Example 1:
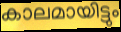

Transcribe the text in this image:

കാലമായിട്ടും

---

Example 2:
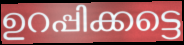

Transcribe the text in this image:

ഉറപ്പിക്കട്ടെ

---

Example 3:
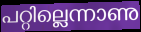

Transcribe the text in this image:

പറ്റില്ലെന്നാണു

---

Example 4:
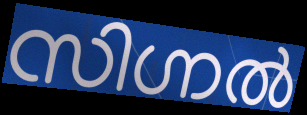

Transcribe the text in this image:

സിഗ്നൽ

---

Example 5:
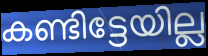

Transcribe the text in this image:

കണ്ടിട്ടേയില്ല